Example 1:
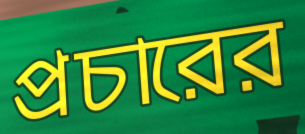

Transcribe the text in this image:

প্রচারের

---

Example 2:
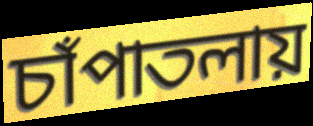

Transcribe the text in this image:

চাঁপাতলায়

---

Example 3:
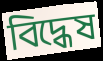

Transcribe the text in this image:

বিদ্ধেষ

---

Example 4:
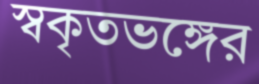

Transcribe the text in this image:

স্বকৃতভঙ্গের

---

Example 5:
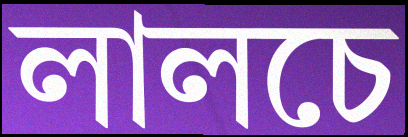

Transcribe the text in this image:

লালচে